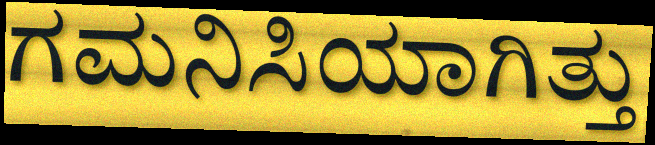
ಗಮನಿಸಿಯಾಗಿತ್ತು